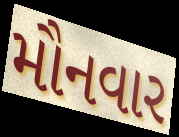
મૌનવાર